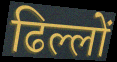
ढिल्लों